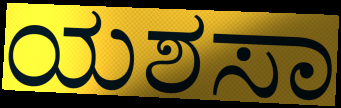
ಯಶಸಾ